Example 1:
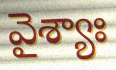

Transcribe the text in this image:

వైశ్యాః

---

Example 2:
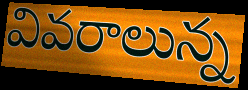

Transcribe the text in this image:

వివరాలున్న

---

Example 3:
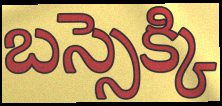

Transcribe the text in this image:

బస్సెక్కి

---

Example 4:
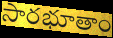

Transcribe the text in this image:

సారభూతాం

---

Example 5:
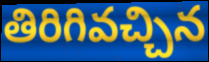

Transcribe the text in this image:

తిరిగివచ్చిన